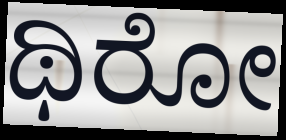
ಥಿರೋ